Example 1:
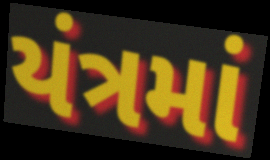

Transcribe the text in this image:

યંત્રમાં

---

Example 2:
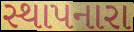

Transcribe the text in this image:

સ્થાપનારા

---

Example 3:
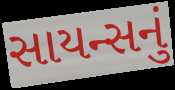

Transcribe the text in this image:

સાયન્સનું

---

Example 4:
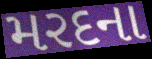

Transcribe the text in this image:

મરદના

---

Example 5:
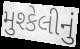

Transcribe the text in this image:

મુશ્કેલીનું